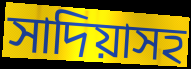
সাদিয়াসহ